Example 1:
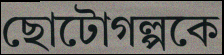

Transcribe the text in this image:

ছোটোগল্পকে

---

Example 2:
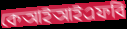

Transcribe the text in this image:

কেআইআইএফবি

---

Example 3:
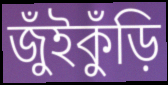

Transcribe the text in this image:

জুঁইকুঁড়ি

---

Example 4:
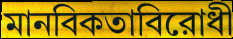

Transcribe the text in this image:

মানবিকতাবিরোধী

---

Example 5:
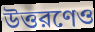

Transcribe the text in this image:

উত্তরণেও